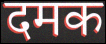
दमक